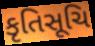
કૃતિસૂચિ